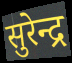
सुरेन्द्र